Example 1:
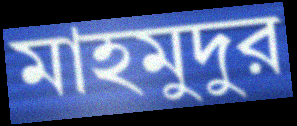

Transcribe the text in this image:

মাহমুদুর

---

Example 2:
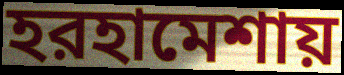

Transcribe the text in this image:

হরহামেশায়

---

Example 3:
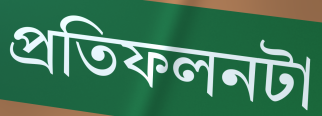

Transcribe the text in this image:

প্রতিফলনটা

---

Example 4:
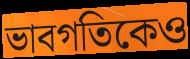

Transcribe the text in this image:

ভাবগতিকেও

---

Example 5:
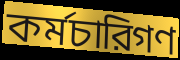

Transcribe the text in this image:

কর্মচারিগণ